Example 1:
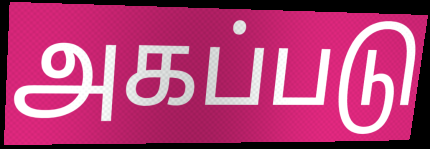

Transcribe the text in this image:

அகப்படு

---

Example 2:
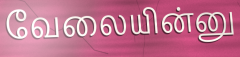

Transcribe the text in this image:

வேலையின்னு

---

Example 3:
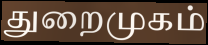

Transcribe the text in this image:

துறைமுகம்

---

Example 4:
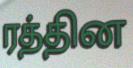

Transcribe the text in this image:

ரத்தின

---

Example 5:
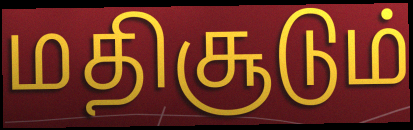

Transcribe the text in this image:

மதிசூடும்